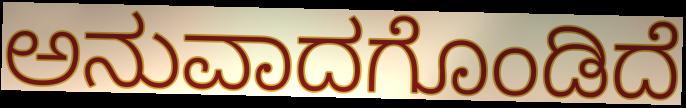
ಅನುವಾದಗೊಂಡಿದೆ